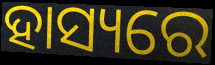
ହାସ୍ୟରେ